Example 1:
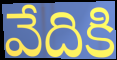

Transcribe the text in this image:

వేదికి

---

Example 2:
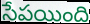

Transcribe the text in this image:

సేపయింది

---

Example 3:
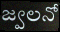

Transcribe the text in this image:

జ్వలనో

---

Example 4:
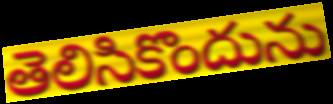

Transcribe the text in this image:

తెలిసికొందును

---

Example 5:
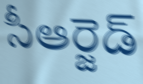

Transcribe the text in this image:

సీఆర్జెడ్